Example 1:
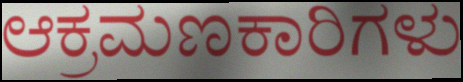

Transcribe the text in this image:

ಆಕ್ರಮಣಕಾರಿಗಳು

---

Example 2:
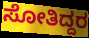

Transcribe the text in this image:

ಸೋತಿದ್ದರ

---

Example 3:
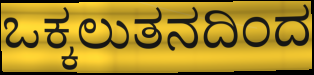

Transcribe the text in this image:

ಒಕ್ಕಲುತನದಿಂದ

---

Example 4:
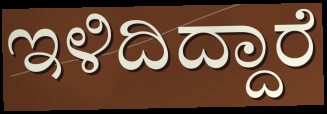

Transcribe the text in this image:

ಇಳಿದಿದ್ದಾರೆ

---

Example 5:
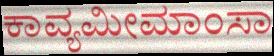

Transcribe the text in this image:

ಕಾವ್ಯಮೀಮಾಂಸಾ